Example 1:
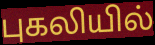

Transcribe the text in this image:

புகலியில்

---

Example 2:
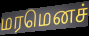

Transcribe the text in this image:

மரமெனச்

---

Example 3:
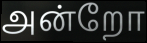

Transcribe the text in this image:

அன்றோ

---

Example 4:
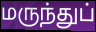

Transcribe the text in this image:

மருந்துப்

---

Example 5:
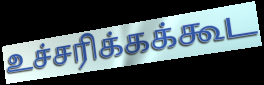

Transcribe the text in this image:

உச்சரிக்கக்கூட